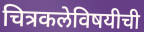
चित्रकलेविषयीची